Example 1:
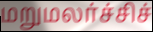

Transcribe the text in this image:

மறுமலர்ச்சிச்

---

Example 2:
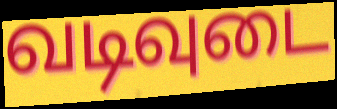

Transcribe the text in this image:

வடிவுடை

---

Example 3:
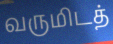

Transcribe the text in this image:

வருமிடத்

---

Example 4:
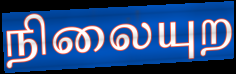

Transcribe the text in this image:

நிலையுற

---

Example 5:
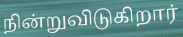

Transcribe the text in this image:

நின்றுவிடுகிறார்